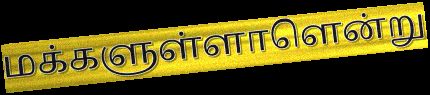
மக்களுள்ளாளென்று